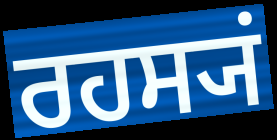
ਰਹਸ੍ਯਂ